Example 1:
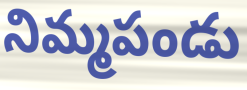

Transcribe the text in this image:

నిమ్మపండు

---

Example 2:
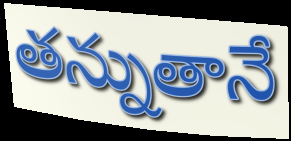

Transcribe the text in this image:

తన్నుతానే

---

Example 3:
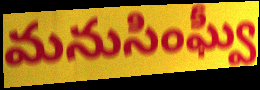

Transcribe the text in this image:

మనుసింఘ్వీ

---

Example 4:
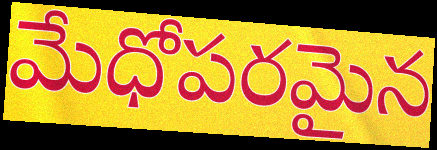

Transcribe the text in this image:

మేధోపరమైన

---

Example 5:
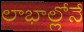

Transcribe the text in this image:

లాభాల్లోనే